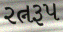
રત્નરૂપ